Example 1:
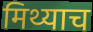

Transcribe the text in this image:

मिथ्याच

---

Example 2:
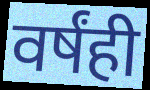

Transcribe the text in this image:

वर्षंही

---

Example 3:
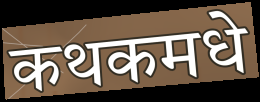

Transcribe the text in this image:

कथकमधे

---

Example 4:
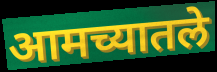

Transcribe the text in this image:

आमच्यातले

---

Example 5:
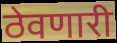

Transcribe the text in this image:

ठेवणारी